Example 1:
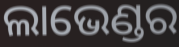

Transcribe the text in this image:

ଲାଭେଣ୍ଡର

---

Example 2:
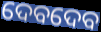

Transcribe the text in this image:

ଦେବଦେବ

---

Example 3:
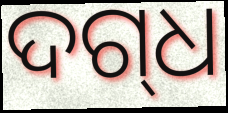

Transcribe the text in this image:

ଦଗ୍‍ଧ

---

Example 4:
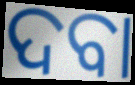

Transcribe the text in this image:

ଦବା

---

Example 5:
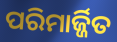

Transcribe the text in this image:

ପରିମାର୍ଜ୍ଜିତ